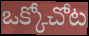
ఒక్కోచోట